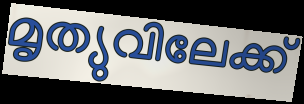
മൃത്യുവിലേക്ക്